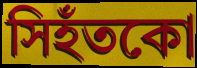
সিহঁতকো